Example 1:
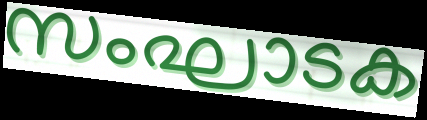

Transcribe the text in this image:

സംഘാടക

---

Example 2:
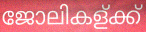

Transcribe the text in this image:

ജോലികള്ക്ക്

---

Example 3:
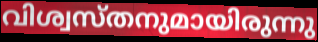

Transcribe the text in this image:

വിശ്വസ്തനുമായിരുന്നു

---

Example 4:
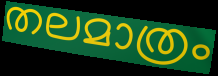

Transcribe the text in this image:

തലമാത്രം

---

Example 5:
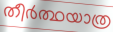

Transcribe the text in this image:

തീർത്ഥയാത്ര